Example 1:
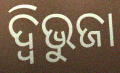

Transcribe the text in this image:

ଦ୍ବିଭୁଜା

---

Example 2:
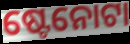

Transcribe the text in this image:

ଷ୍ଟେନୋଟା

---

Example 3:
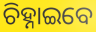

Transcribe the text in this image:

ଚିହ୍ନାଇବେ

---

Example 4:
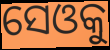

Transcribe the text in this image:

ସେଓକୁ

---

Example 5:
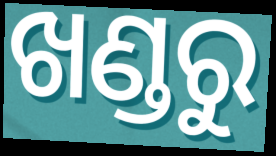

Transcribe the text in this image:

ଖଣ୍ଡରୁ